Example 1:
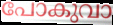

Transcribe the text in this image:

പോകുവാ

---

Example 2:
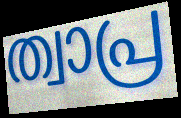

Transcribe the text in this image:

ത്വാപ്ര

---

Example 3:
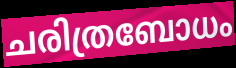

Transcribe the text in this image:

ചരിത്രബോധം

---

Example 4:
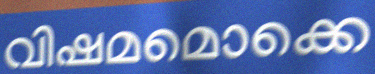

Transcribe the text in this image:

വിഷമമൊക്കെ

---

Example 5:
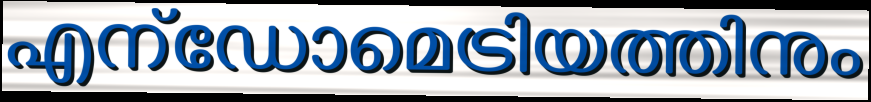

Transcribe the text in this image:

എന്ഡോമെട്രിയത്തിനും